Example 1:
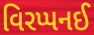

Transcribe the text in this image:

વિરપ્પનઈ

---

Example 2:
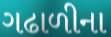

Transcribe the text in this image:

ગઢાળીના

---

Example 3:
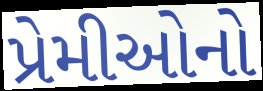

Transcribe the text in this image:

પ્રેમીઓનો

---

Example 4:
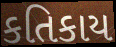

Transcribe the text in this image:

કતિકાય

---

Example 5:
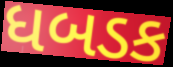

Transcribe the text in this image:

ધબડક